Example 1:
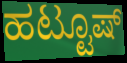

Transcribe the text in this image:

ಹಟ್ಟೂಷ್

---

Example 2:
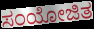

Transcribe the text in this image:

ಸಂಯೋಜಿತ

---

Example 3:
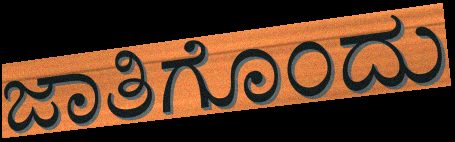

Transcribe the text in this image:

ಜಾತಿಗೊಂದು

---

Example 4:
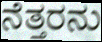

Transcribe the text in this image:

ನೆತ್ತರನು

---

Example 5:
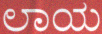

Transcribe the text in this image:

ಲಾಯ